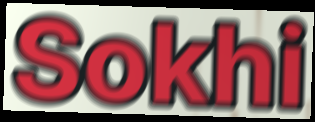
Sokhi